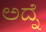
ಅದ್ನೆ